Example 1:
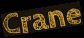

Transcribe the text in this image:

Crane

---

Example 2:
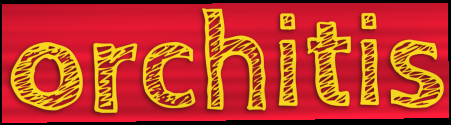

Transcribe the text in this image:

orchitis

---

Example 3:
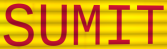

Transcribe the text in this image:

SUMIT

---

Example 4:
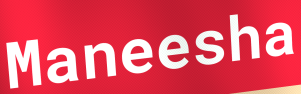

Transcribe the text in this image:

Maneesha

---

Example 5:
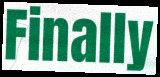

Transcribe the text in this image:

Finally